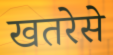
खतरेसे